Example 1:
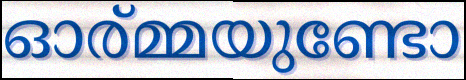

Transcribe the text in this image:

ഓര്മ്മയുണ്ടോ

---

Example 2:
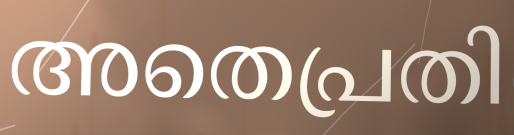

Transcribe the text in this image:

അതെപ്രതി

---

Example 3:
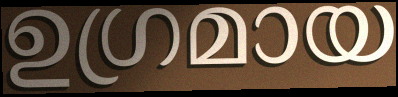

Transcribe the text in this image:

ഉഗ്രമായ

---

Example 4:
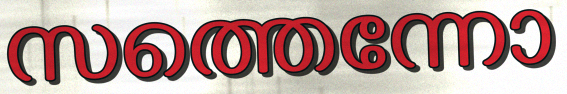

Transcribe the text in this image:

സത്തെന്നോ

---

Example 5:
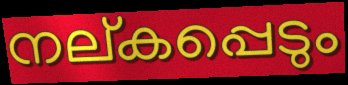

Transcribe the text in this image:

നല്കപ്പെടും